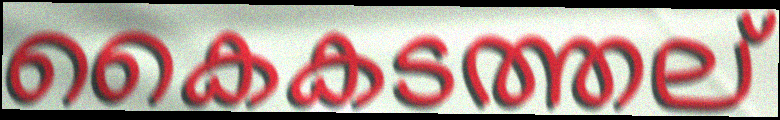
കൈകടത്തല്